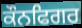
ਕੌਨਫਿਗਰ